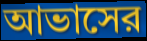
আভাসের